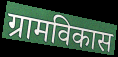
ग्रामविकास